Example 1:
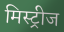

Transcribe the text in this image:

मिस्ट्रीज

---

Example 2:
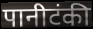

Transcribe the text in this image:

पानीटंकी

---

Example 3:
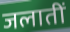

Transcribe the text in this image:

जलातीं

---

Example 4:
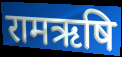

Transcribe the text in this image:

रामऋषि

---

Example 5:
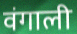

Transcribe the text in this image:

वंगाली